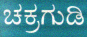
ಚಕ್ರಗುಡಿ